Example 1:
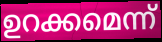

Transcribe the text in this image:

ഉറക്കമെന്ന്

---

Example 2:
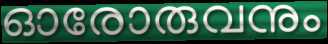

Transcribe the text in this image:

ഓരോരുവനും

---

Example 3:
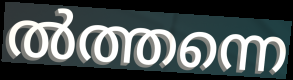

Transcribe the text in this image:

ൽത്തന്നെ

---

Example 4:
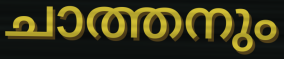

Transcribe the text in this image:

ചാത്തനും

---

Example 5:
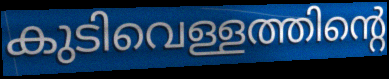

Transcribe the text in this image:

കുടിവെള്ളത്തിന്റെ